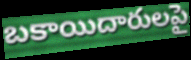
బకాయిదారులపై